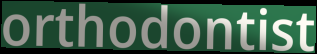
orthodontist